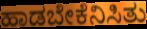
ಹಾಡಬೇಕೆನಿಸಿತು